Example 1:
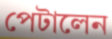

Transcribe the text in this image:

পেটালেন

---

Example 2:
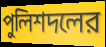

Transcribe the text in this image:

পুলিশদলের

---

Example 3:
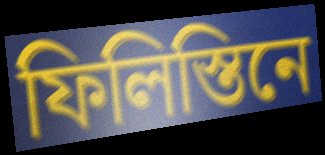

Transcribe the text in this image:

ফিলিস্তিনে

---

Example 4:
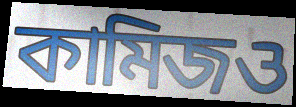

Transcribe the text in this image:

কামিজও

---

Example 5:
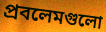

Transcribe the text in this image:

প্রবলেমগুলো